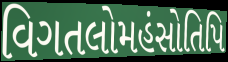
વિગતલોમહંસોતિપિ